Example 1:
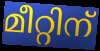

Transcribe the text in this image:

മീറ്റിന്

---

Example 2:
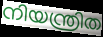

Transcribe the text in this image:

നിയന്ത്രിത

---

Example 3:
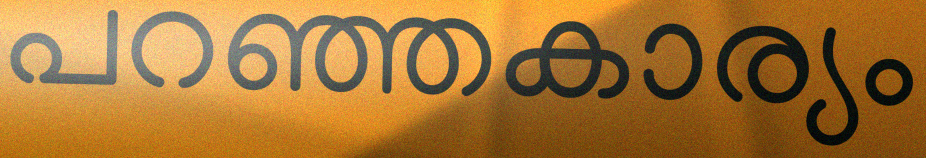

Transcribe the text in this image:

പറഞ്ഞകാര്യം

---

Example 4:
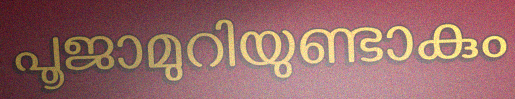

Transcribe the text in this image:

പൂജാമുറിയുണ്ടാകും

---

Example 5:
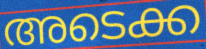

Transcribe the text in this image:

അടെക്ക